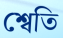
শ্বেতি